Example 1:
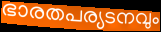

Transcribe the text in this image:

ഭാരതപര്യടനവും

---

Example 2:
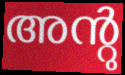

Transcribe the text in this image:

അന്റു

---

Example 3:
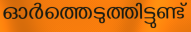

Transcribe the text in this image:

ഓർത്തെടുത്തിട്ടുണ്ട്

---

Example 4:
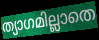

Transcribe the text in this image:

ത്യാഗമില്ലാതെ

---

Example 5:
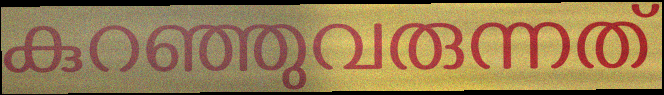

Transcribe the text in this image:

കുറഞ്ഞുവരുന്നത്